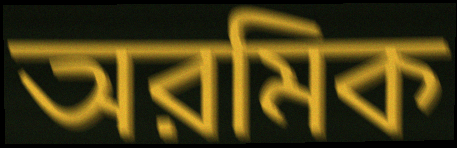
অরমিক